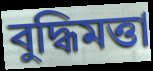
বুদ্ধিমত্তা